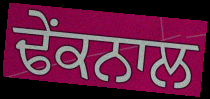
ਢੇਂਕਨਾਲ